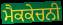
ਮੈਕਕੇਚਨੀ